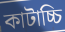
কাটাচ্চি